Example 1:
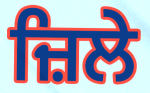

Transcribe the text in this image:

ਜ਼ਿਲੇ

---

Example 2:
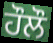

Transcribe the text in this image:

ਹੌਲੌ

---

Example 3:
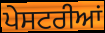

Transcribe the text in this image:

ਪੇਸਟਰੀਆਂ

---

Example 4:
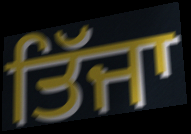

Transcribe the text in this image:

ਤਿੱਜਾ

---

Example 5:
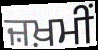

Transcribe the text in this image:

ਜ਼ਖ਼ਮੀਂ